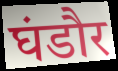
घंडौर